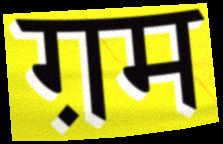
ग़म